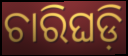
ଚାରିଘଡ଼ି